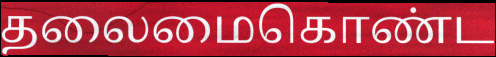
தலைமைகொண்ட